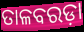
ତାଳବରଡ଼ା